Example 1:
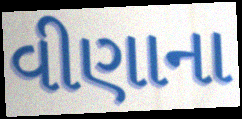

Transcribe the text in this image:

વીણાના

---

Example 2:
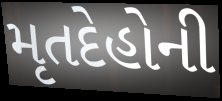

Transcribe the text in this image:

મૃતદેહોની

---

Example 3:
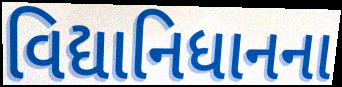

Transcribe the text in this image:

વિદ્યાનિધાનના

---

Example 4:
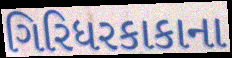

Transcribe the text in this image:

ગિરિધરકાકાના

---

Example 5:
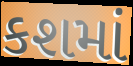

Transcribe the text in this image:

કશમાં